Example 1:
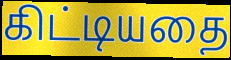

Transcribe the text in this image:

கிட்டியதை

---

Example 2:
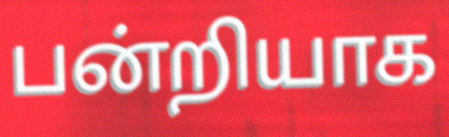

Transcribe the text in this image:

பன்றியாக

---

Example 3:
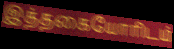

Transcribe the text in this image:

இத்தகையோரிடம்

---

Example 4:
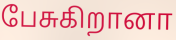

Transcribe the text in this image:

பேசுகிறானா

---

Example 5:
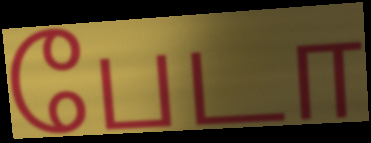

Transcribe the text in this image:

பேடா